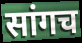
सांगच